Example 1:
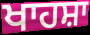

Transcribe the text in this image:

ਖਾਹਸ਼ਾ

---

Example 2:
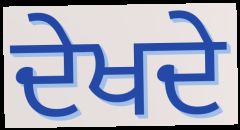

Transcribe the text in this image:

ਦੇਖਦੇ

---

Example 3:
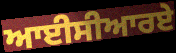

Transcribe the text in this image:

ਆਈਸੀਆਰਏ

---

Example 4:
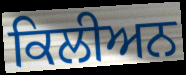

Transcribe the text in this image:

ਕਿਲੀਅਨ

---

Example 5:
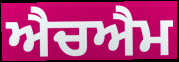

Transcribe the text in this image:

ਐਚਐਮ